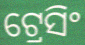
ଟ୍ରେସିଂ